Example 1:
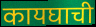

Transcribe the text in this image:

कायघाची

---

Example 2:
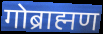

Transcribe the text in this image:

गोब्राह्मण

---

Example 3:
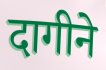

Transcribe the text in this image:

दागीने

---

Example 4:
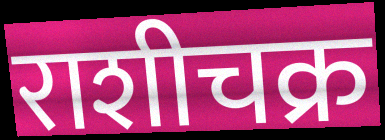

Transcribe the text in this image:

राशीचक्र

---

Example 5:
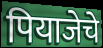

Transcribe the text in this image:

पियाजेचे